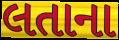
લતાના